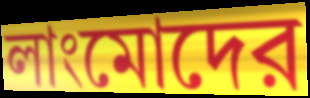
লাংমোদের